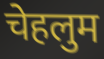
चेहलुम